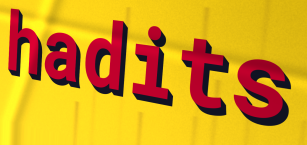
hadits